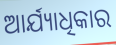
ଆର୍ଯ୍ୟାଧିକାର